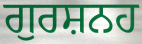
ਗੁਰਸ਼ਨਹ